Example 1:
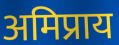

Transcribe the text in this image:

अमिप्राय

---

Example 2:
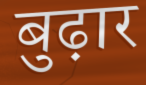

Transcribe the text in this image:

बुढ़ार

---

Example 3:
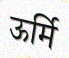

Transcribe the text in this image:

ऊर्मि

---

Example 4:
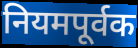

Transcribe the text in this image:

नियमपूर्वक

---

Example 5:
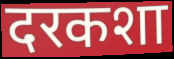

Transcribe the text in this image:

दरकशा